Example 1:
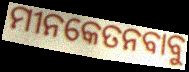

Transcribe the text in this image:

ମୀନକେତନବାବୁ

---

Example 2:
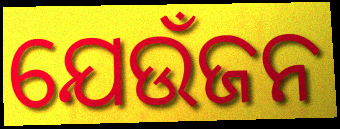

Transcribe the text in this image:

ଯେଉଁଜନ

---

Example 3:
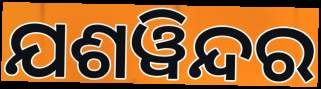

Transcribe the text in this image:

ଯଶୱିନ୍ଦର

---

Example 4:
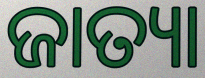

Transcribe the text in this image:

ଜାତ୍ୟା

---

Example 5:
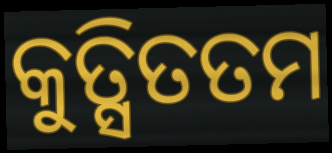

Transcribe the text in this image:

କୁତ୍ସିତତମ